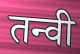
तन्वी